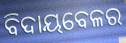
ବିଦାୟବେଳର